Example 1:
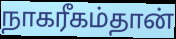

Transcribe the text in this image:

நாகரீகம்தான்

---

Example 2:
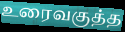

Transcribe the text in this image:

உரைவகுத்த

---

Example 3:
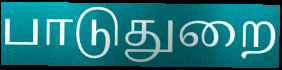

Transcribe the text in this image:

பாடுதுறை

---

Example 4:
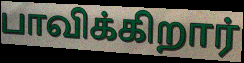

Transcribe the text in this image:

பாவிக்கிறார்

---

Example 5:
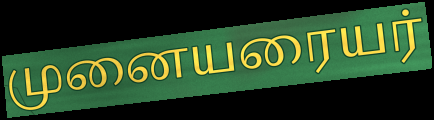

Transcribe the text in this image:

முனையரையர்